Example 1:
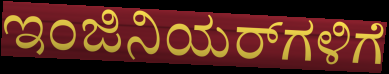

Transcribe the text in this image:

ಇಂಜಿನಿಯರ್‌ಗಳಿಗೆ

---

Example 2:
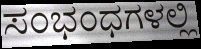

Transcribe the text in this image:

ಸಂಭಂಧಗಳಲ್ಲಿ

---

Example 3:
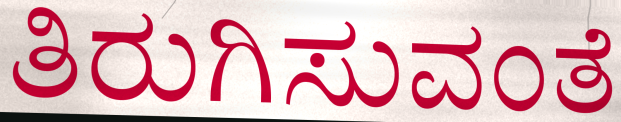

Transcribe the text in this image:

ತಿರುಗಿಸುವಂತೆ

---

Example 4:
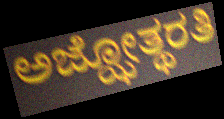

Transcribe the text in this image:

ಅಜ್ಝೋತ್ಥರತಿ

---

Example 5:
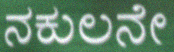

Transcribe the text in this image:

ನಕುಲನೇ